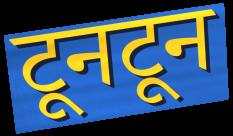
टूनटून